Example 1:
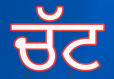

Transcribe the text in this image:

ਚੱਟ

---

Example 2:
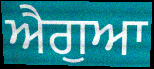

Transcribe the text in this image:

ਐਗੁਆ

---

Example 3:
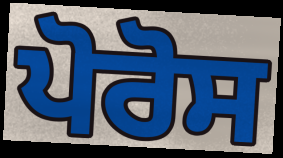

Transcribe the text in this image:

ਪੋਰੋਸ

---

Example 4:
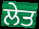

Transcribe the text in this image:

ਲੇਤ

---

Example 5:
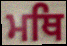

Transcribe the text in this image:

ਮਥਿ